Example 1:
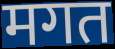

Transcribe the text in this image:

मगत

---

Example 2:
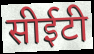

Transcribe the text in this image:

सीईटी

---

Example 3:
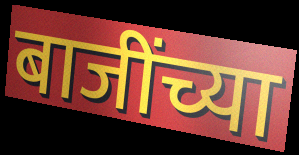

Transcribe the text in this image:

बाजींच्या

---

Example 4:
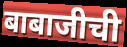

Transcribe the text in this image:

बाबाजीची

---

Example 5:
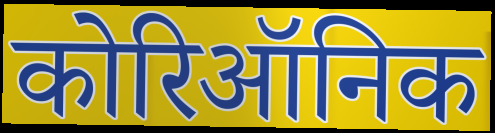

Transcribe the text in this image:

कोरिऑनिक